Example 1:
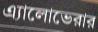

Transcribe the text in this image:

এ্যালোভেরার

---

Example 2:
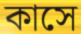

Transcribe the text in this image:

কাসে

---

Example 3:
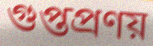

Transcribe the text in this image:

গুপ্তপ্রণয়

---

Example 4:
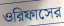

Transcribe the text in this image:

ওরিফাসের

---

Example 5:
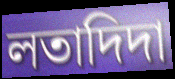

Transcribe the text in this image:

লতাদিদা